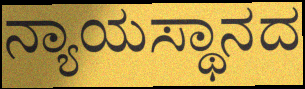
ನ್ಯಾಯಸ್ಥಾನದ